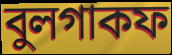
বুলগাকফ